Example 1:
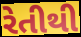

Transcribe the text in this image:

રેતીથી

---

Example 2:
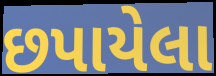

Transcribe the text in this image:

છપાયેલા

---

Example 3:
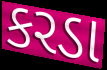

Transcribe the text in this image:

કરડા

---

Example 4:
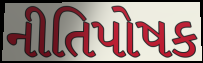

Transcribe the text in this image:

નીતિપોષક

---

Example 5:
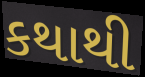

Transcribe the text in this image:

કથાથી